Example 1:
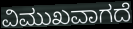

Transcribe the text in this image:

ವಿಮುಖವಾಗದೆ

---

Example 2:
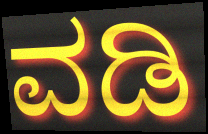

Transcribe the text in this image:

ವಡಿ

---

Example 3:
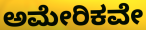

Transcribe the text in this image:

ಅಮೇರಿಕವೇ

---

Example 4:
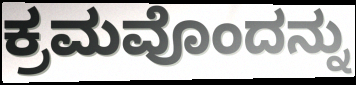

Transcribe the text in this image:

ಕ್ರಮವೊಂದನ್ನು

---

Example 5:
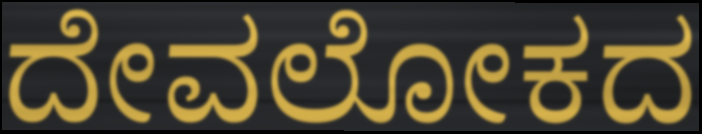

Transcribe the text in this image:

ದೇವಲೋಕದ